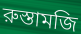
রুস্তামজি